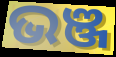
ଭଞ୍ଜ